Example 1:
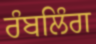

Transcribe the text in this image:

ਰੰਬਲਿੰਗ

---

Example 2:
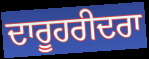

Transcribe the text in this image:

ਦਾਰੂਹਰੀਦਰਾ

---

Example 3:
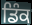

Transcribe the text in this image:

ਡਿੰਕ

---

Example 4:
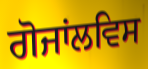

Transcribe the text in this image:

ਗੋਜਾਂਲਵਿਸ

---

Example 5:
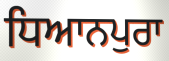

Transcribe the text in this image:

ਧਿਆਨਪੁਰਾ